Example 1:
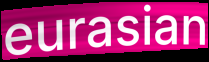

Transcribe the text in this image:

eurasian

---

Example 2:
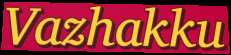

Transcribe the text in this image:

Vazhakku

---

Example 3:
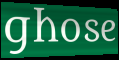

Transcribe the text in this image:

ghose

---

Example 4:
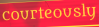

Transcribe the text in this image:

courteously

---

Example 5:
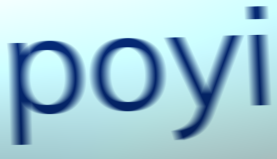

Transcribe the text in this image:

poyi